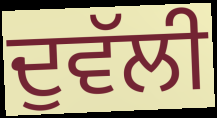
ਦੁਵੱਲੀ